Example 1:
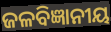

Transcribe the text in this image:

ଜଳବିଜ୍ଞାନୀୟ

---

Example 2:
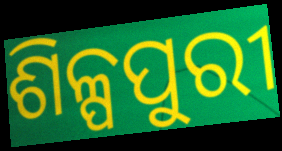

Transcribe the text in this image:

ଶିଳ୍ପପୁରୀ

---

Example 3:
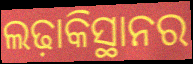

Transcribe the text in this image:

ଲଢ଼ାକିସ୍ଥାନର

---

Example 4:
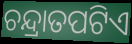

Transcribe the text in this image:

ଚନ୍ଦ୍ରାତପଟିଏ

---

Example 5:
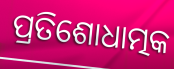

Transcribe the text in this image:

ପ୍ରତିଶୋଧାତ୍ମକ